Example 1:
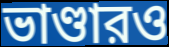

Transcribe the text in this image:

ভাণ্ডারও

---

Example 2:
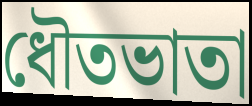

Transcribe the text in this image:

ধৌতভাতা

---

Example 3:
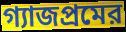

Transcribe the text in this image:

গ্যাজপ্রমের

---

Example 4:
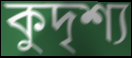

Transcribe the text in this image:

কুদৃশ্য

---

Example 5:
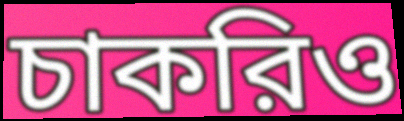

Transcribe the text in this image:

চাকরিও